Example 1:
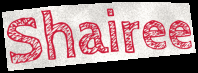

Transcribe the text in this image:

Shairee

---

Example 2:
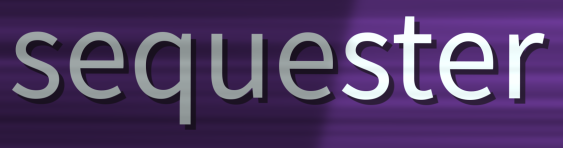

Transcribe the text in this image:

sequester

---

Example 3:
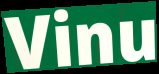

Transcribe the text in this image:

Vinu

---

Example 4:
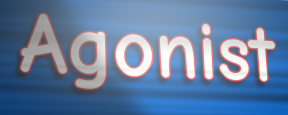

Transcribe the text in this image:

Agonist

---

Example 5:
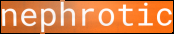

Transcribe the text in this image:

nephrotic